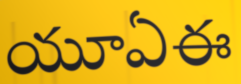
యూఏఈ